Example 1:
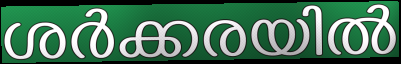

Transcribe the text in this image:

ശർക്കരയിൽ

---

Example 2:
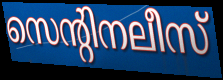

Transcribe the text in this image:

സെന്റിനലീസ്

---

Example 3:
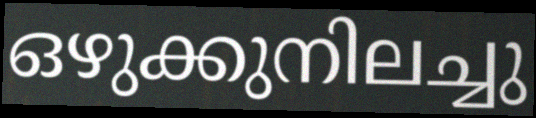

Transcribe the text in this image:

ഒഴുക്കുനിലച്ചു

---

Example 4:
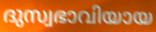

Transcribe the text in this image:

ദുസ്വഭാവിയായ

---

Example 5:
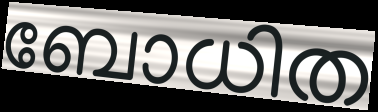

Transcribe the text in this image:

ബോധിത